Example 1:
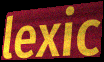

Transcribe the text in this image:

lexic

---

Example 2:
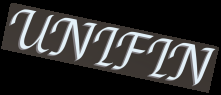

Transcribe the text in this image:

UNIFIN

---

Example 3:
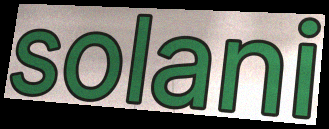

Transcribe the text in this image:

solani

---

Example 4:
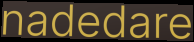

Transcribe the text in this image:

nadedare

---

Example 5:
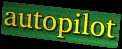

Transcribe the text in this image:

autopilot